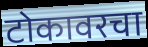
टोकावरचा